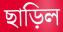
ছাড়িল